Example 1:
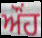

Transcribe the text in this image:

ਔਂਹ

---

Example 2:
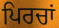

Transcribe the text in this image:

ਪਿਰਚਾਂ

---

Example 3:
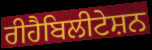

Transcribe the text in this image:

ਰੀਹੈਬਿਲੀਟੇਸ਼ਨ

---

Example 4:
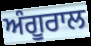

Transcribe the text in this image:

ਅੰਗੂਰਾਲ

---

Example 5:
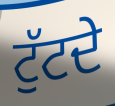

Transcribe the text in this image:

ਟੁੱਟਦੇ